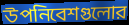
উপনিবেশগুলোর